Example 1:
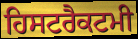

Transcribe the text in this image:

ਹਿਸਟਰੈਕਟਮੀ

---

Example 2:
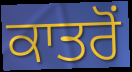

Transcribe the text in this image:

ਕਾਤਰੋੰ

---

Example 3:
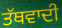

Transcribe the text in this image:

ਤੱਥਵਾਦੀ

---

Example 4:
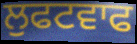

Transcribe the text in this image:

ਲੁਫਟਵਾਫ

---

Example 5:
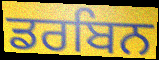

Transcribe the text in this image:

ਡਰਬਿਨ